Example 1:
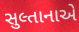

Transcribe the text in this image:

સુલ્તાનાએ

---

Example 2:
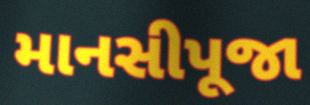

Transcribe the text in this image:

માનસીપૂજા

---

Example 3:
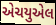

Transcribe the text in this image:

એચયુએલ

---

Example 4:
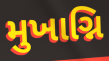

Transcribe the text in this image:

મુખાગ્નિ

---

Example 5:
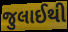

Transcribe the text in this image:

જુલાઈથી